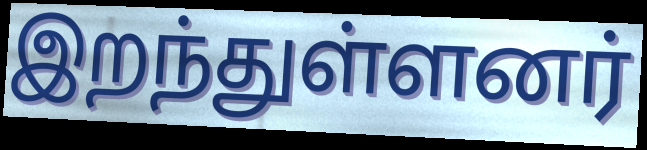
இறந்துள்ளனர்